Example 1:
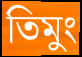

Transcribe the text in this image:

তিমুং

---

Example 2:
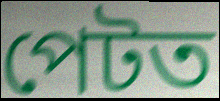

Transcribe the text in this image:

পেটত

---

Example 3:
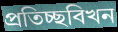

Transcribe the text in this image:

প্ৰতিচ্ছবিখন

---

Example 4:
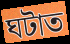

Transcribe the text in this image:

ঘটাত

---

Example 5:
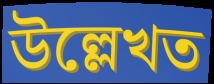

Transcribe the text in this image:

উল্লেখত